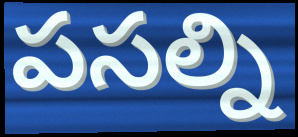
పసల్ని